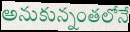
అనుకున్నంతలోనే